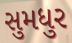
સુમધુર